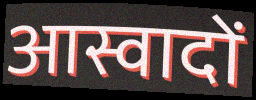
आस्वादों